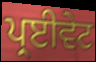
ਪ੍ਰਈਵੇਟ